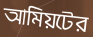
আমিয়টের